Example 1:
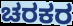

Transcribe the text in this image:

ಚರಕರ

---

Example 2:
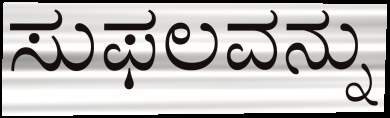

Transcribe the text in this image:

ಸುಫಲವನ್ನು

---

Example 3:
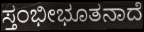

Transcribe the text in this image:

ಸ್ತಂಭೀಭೂತನಾದೆ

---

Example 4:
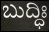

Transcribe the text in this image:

ಬುದ್ಧಿಃ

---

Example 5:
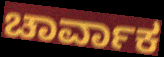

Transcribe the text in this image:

ಚಾರ್ವಾಕ